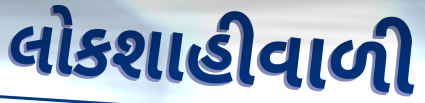
લોકશાહીવાળી